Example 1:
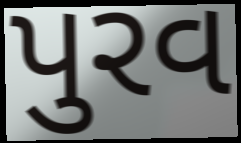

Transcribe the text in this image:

પુરવ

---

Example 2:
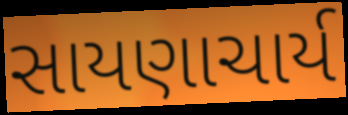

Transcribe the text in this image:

સાયણાચાર્ય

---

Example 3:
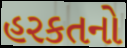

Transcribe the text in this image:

હરકતનો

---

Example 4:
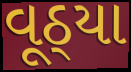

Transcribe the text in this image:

વૂઠ્યા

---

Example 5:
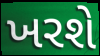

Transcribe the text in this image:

ખરશે